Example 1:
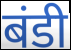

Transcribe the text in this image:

बंडी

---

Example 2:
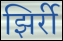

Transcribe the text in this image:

झिर्री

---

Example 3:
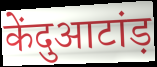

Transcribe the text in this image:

केंदुआटांड़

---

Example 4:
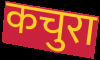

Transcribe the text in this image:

कचुरा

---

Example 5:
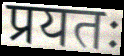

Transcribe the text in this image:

प्रयतः